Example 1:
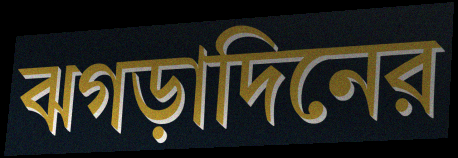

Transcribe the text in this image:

ঝগড়াদিনের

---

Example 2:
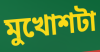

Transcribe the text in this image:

মুখোশটা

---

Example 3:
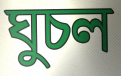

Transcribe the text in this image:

ঘুচল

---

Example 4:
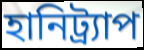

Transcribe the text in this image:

হানিট্র্যাপ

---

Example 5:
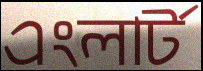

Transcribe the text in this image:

এংলার্ট